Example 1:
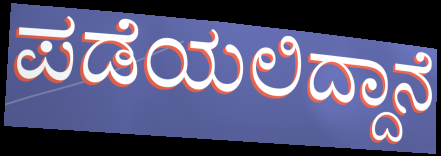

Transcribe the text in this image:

ಪಡೆಯಲಿದ್ದಾನೆ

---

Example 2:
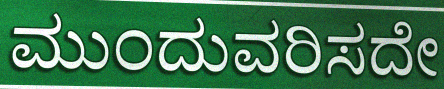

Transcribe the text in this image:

ಮುಂದುವರಿಸದೇ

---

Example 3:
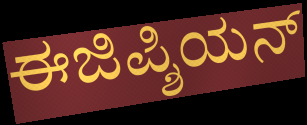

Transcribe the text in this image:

ಈಜಿಪ್ಶಿಯನ್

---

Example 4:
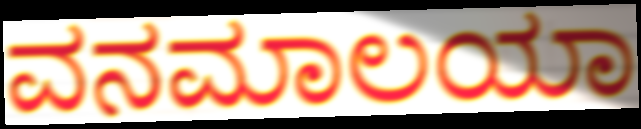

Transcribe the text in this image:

ವನಮಾಲಯಾ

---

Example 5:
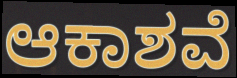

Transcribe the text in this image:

ಆಕಾಶವೆ